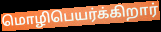
மொழிபெயர்க்கிறார்